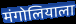
मंगोलियाला